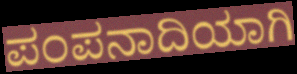
ಪಂಪನಾದಿಯಾಗಿ